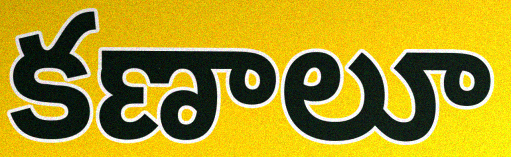
కణాలూ